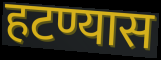
हटण्यास